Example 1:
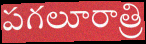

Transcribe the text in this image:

పగలూరాత్రి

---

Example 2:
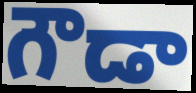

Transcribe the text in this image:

గౌడా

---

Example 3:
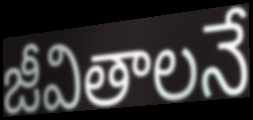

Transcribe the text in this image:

జీవితాలనే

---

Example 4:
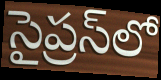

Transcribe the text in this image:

సైప్రస్‌లో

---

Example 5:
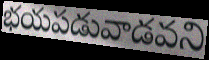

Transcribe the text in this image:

భయపడువాడవని